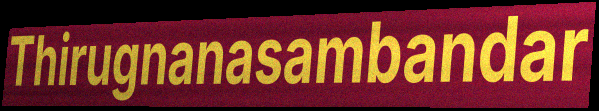
Thirugnanasambandar